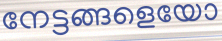
നേട്ടങ്ങളെയോ